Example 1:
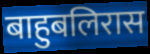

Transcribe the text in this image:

बाहुबलिरास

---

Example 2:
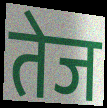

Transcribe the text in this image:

तेज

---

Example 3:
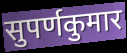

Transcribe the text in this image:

सुपर्णकुमार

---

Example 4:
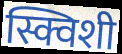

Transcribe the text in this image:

स्क्विशी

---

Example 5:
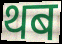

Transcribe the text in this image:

थब